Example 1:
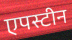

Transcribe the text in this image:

एपस्टीन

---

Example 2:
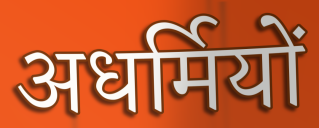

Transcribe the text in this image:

अधर्मियों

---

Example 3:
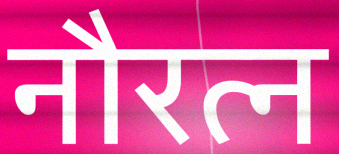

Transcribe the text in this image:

नौरत्न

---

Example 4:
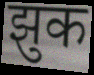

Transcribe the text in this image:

झुक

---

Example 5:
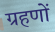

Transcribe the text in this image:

ग्रहणों